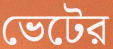
ভেটের